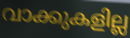
വാക്കുകളില്ല